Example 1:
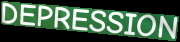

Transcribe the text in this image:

DEPRESSION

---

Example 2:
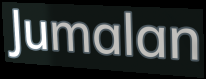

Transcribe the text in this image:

Jumalan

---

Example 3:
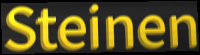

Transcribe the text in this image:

Steinen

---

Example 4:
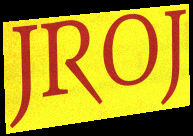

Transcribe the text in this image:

JROJ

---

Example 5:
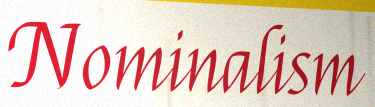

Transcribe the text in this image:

Nominalism